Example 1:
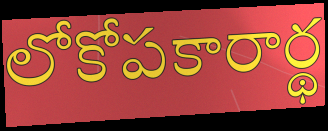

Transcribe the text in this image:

లోకోపకారార్థ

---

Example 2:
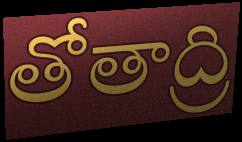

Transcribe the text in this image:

తోతాద్రి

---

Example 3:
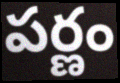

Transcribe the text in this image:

పర్ణం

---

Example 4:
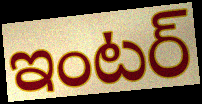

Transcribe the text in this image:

ఇంటర్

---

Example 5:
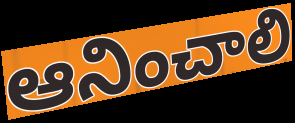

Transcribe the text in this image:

ఆనించాలి